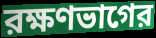
রক্ষণভাগের